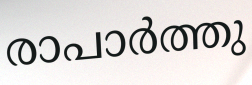
രാപാർത്തു